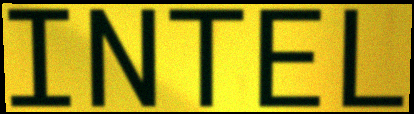
INTEL